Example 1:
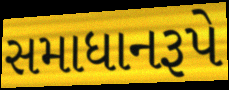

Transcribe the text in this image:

સમાધાનરૂપે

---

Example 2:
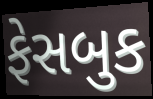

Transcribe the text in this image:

ફેસબુક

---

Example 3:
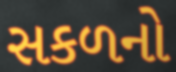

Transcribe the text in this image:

સકળનો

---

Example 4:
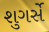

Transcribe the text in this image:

શુગર્સે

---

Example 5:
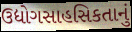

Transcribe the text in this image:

ઉદ્યોગસાહસિકતાનું